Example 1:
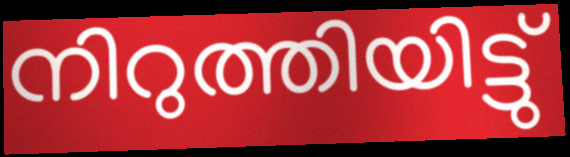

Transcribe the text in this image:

നിറുത്തിയിട്ടു്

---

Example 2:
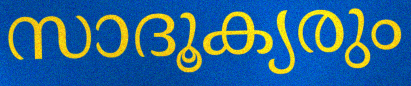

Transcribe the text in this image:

സാദൂക്യരും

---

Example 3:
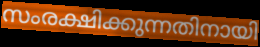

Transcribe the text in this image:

സംരക്ഷിക്കുന്നതിനായി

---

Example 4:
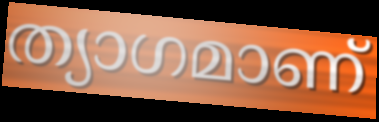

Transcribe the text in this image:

ത്യാഗമാണ്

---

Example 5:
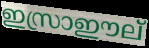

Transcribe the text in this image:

ഇസ്രാഈല്